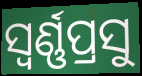
ସ୍ୱର୍ଣ୍ଣପ୍ରସୁ